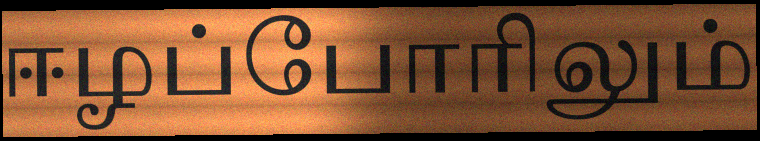
ஈழப்போரிலும்